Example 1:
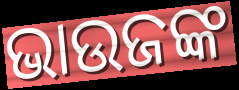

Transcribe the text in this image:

ଭାଉଜଙ୍କ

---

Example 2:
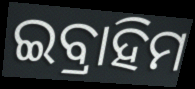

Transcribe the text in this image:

ଇବ୍ରାହିମ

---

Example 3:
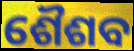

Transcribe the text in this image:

ଶୈଶବ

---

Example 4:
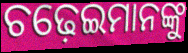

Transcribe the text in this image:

ଚଢ଼େଇମାନଙ୍କୁ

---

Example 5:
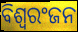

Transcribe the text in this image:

ବିଶ୍ୱରଂଜନ